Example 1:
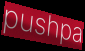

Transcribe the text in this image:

pushpa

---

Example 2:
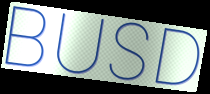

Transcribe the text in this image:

BUSD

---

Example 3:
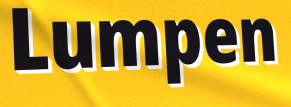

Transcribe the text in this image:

Lumpen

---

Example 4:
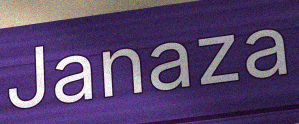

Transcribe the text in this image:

Janaza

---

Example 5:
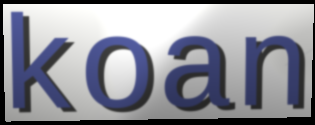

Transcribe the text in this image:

koan